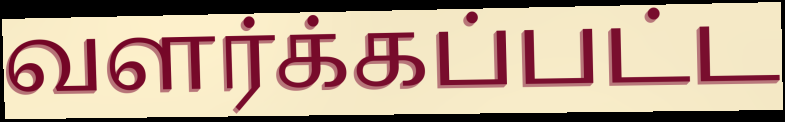
வளர்க்கப்பட்ட